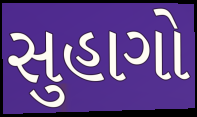
સુહાગો